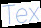
Tex